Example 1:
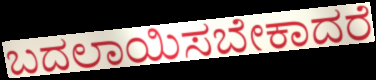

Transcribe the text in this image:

ಬದಲಾಯಿಸಬೇಕಾದರೆ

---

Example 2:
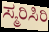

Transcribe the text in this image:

ಸ್ಮರಿಸಿರಿ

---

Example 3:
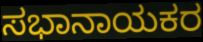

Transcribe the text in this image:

ಸಭಾನಾಯಕರ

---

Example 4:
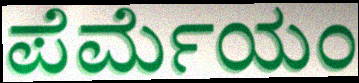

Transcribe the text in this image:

ಪೆರ್ಮೆಯಂ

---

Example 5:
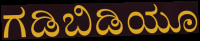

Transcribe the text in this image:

ಗಡಿಬಿಡಿಯೂ